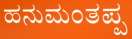
ಹನುಮಂತಪ್ಪ